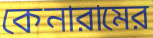
কেনারামের